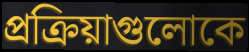
প্রক্রিয়াগুলোকে